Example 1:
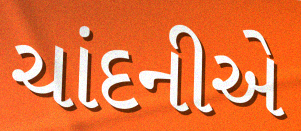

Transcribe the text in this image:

ચાંદનીએ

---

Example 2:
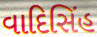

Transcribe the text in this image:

વાદિસિંહ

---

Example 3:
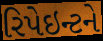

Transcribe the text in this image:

રિપેઇન્ટને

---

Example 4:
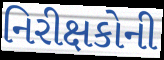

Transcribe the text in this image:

નિરીક્ષકોની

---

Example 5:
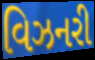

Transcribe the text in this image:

વિઝનરી